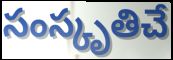
సంస్కృతిచే